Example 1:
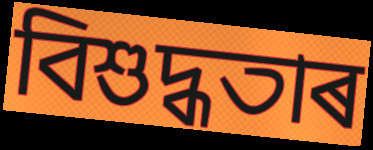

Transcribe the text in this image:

বিশুদ্ধতাৰ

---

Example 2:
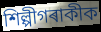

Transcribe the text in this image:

শিল্পীগৰাকীক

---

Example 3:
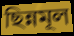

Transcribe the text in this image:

ছিন্নমূল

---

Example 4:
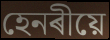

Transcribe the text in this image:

হেনৰীয়ে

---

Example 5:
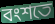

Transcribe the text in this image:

বংশতে